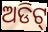
ଅଡିଟ୍